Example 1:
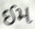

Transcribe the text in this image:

ઈમ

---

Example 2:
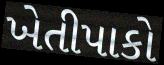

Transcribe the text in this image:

ખેતીપાકો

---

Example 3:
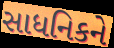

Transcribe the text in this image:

સાધનિકને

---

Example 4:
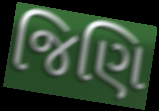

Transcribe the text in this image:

જિણિ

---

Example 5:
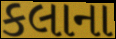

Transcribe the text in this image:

કલાના